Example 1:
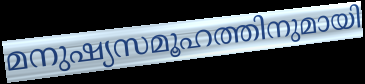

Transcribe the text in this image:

മനുഷ്യസമൂഹത്തിനുമായി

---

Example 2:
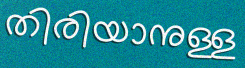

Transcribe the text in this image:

തിരിയാനുള്ള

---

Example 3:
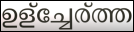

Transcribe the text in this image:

ഉള്ച്ചേര്ത്ത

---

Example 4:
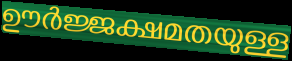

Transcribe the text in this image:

ഊർജ്ജക്ഷമതയുള്ള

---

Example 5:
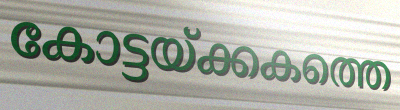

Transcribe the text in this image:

കോട്ടയ്ക്കകത്തെ